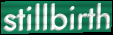
stillbirth